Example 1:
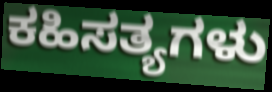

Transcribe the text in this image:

ಕಹಿಸತ್ಯಗಳು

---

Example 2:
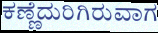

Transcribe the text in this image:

ಕಣ್ಣೆದುರಿಗಿರುವಾಗ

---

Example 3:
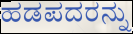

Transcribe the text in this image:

ಹಡಪದರನ್ನು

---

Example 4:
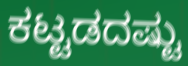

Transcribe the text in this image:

ಕಟ್ಟಡದಷ್ಟು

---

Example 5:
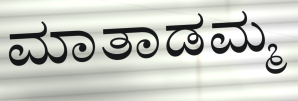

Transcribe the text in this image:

ಮಾತಾಡಮ್ಮ